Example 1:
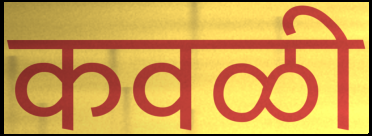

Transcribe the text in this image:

कवळी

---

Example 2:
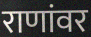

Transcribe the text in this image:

राणांवर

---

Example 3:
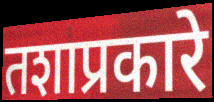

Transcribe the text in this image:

तशाप्रकारे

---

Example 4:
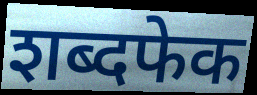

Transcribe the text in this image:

शब्दफेक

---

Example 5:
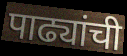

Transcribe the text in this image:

पाढ्यांची